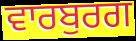
ਵਾਰਬੁਰਗ